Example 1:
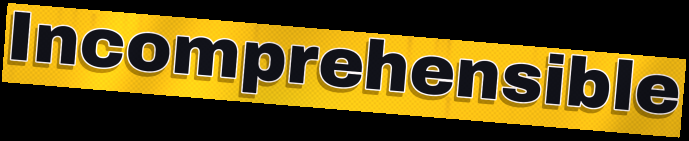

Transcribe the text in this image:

Incomprehensible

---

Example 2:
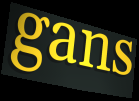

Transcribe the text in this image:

gans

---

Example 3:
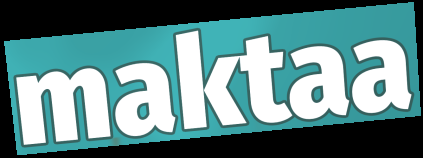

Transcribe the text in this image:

maktaa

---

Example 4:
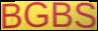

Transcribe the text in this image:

BGBS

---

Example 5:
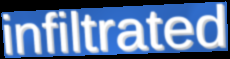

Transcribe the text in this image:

infiltrated